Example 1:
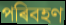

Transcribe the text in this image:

পৰিবহণ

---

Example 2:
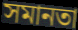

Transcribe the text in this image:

সমানতা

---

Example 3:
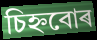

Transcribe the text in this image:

চিহ্নবোৰ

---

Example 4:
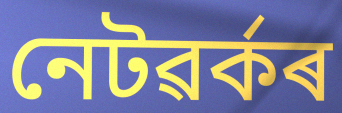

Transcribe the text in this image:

নেটৱৰ্কৰ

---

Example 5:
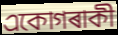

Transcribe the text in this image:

একোগৰাকী